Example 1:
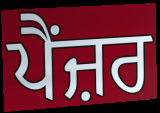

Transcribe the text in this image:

ਪੈਂਜ਼ਰ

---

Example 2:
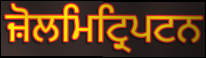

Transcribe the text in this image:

ਜ਼ੋਲਮਿਟ੍ਰਿਪਟਨ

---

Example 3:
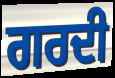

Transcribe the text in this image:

ਗਰਦੀ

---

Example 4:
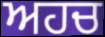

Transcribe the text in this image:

ਅਹਚ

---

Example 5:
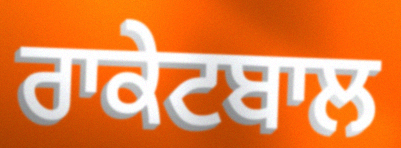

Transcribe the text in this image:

ਰਾਕੇਟਬਾਲ